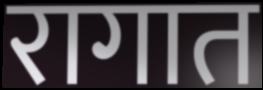
रागात